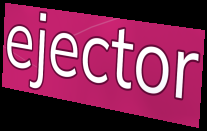
ejector